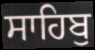
ਸਾਹਿਬੁ